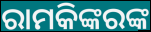
ରାମକିଙ୍କରଙ୍କ